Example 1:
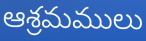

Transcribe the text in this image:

ఆశ్రమములు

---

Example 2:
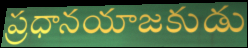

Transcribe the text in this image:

ప్రధానయాజకుడు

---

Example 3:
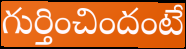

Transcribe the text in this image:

గుర్తించిందంటే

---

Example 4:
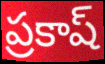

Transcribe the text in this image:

ప్రకాష్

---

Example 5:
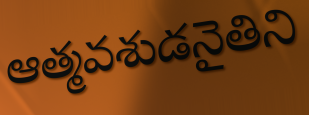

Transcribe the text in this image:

ఆత్మవశుడనైతిని